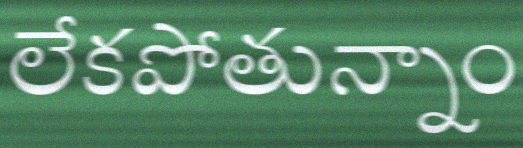
లేకపోతున్నాం